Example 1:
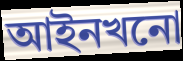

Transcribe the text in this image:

আইনখনো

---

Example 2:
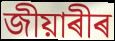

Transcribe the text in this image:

জীয়াৰীৰ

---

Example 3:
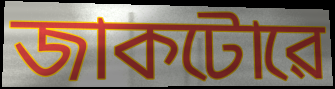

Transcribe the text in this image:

জাকটোৱে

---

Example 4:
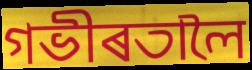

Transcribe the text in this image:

গভীৰতালৈ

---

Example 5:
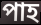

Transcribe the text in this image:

পাহ